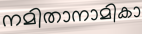
നമിതാനാമികാ